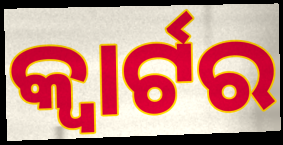
କ୍ଵାର୍ଟର